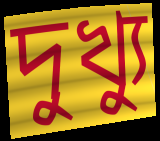
দুখ্যু